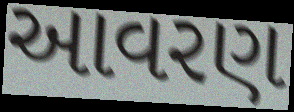
આવરણ